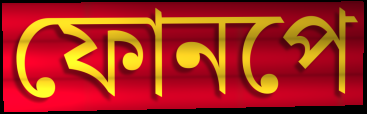
ফোনপে